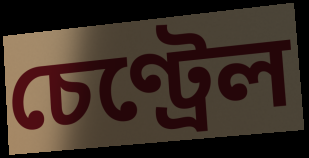
চেণ্ট্ৰেল